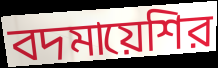
বদমায়েশির